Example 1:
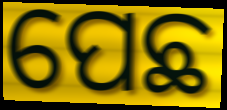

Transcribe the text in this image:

ପେଛ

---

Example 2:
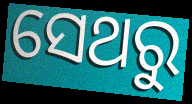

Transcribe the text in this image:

ସେଥରୁ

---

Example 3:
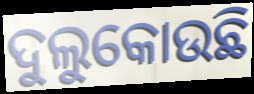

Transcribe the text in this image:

ଦୁଲୁକୋଉଛି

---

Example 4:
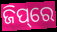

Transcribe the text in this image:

ଜିପ୍‌ରେ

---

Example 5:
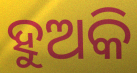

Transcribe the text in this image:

ହୁଅକି